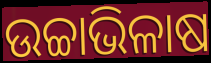
ଉଚ୍ଚାଭିଳାଷ